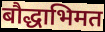
बौद्धाभिमत